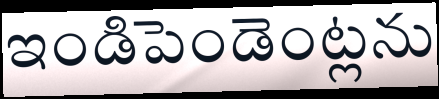
ఇండిపెండెంట్లను